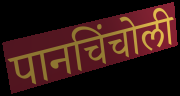
पानचिंचोली